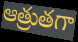
ఆత్రుతగా